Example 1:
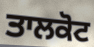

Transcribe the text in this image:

ਤਾਲਕੋਟ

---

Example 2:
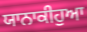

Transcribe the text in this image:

ਯਾਨਾਕੀਹੁਆ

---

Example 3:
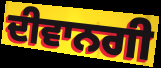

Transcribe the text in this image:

ਦੀਵਾਨਗੀ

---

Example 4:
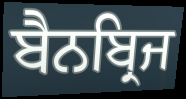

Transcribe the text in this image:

ਬੈਨਬ੍ਰਿਜ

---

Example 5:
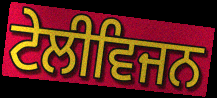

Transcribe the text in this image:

ਟੇਲੀਵਿਜਨ